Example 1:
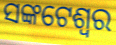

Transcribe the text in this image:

ସଙ୍କଟେଶ୍ୱର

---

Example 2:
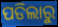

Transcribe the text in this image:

ପଡିଲାରୁ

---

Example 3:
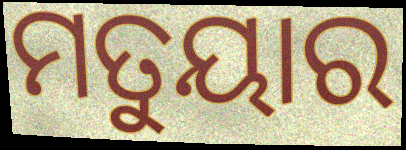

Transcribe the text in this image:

ମତୁୟାର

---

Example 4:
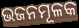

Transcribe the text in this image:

ଭଜନମୂଳକ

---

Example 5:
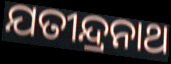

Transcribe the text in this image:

ଯତୀନ୍ଦ୍ରନାଥ